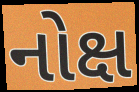
નોક્ષ